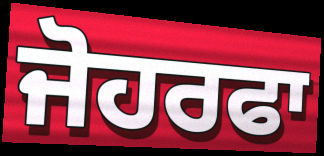
ਜੋਹਰਫਾ